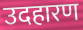
उदहारण